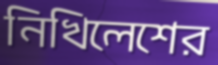
নিখিলেশের